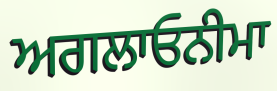
ਅਗਲਾਓਨੀਮਾ